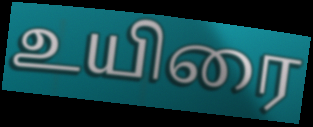
உயிரை